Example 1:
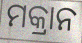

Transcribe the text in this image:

ମକ୍ରାନ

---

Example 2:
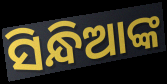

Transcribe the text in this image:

ସିନ୍ଧିଆଙ୍କ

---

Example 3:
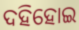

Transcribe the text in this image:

ଦହିହୋଇ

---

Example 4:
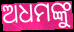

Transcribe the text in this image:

ଅଧମଙ୍କୁ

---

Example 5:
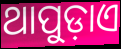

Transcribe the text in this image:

ଥାପୁଡ଼ାଏ